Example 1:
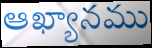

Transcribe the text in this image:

ఆఖ్యానము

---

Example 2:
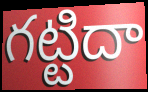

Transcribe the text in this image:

గట్టిదా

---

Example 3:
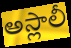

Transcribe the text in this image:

అస్లాలీ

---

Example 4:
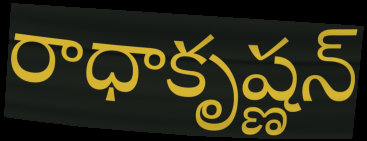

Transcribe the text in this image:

రాధాకృష్ణన్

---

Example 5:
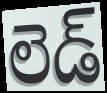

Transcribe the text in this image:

లెడ్